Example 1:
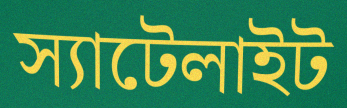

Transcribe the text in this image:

স্যাটেলাইট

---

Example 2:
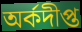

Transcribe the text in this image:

অর্কদীপ্ত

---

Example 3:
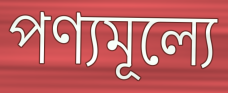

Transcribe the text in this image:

পণ্যমূল্যে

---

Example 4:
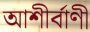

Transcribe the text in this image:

আশীর্বাণী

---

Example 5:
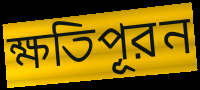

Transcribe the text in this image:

ক্ষতিপূরন